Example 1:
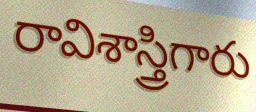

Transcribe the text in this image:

రావిశాస్త్రిగారు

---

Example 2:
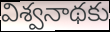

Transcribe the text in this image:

విశ్వనాథకు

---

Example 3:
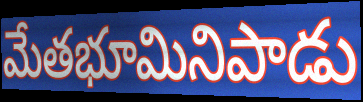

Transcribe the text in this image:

మేతభూమినిపాడు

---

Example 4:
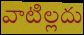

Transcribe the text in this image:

వాటిల్లదు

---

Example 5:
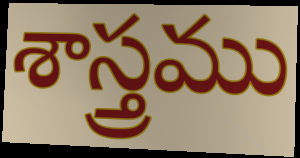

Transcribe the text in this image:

శాస్త్రము